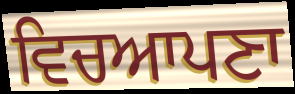
ਵਿਚਆਪਣਾ